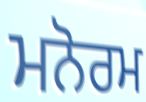
ਮਨੋਰਮ